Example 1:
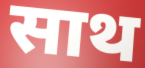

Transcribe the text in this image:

साथ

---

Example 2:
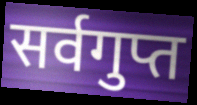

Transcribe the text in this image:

सर्वगुप्त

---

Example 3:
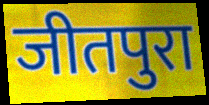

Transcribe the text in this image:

जीतपुरा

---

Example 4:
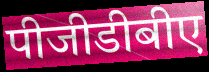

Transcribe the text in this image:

पीजीडीबीए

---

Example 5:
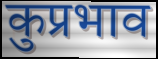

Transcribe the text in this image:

कुप्रभाव